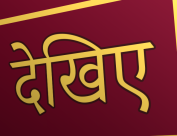
देखिए